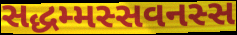
સદ્ધમ્મસ્સવનસ્સ